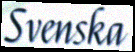
Svenska